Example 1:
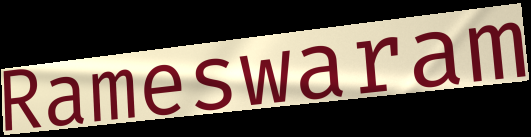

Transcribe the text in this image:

Rameswaram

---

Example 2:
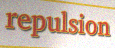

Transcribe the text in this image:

repulsion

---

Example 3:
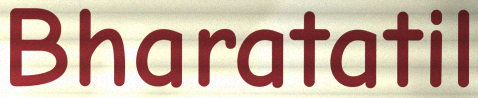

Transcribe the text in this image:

Bharatatil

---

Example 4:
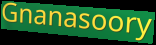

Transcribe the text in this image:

Gnanasoory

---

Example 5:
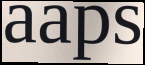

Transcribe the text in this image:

aaps